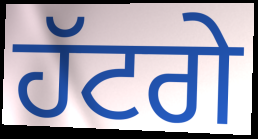
ਹੱਟਗੇ